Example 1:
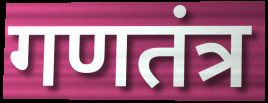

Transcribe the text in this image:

गणतंत्र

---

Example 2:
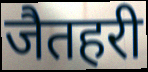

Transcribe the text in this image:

जैतहरी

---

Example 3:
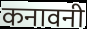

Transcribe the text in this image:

कनावनी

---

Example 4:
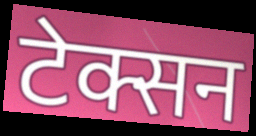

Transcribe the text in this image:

टेक्सन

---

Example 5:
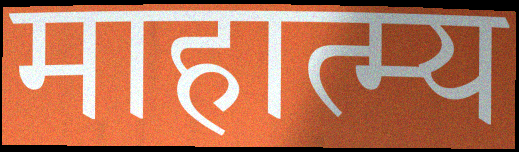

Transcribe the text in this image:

माहात्म्य